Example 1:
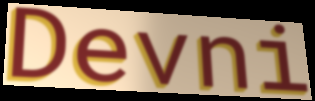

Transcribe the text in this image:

Devni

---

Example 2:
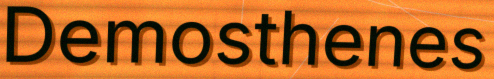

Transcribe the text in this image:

Demosthenes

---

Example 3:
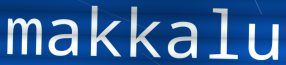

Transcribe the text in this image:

makkalu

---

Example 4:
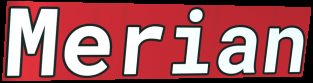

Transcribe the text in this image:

Merian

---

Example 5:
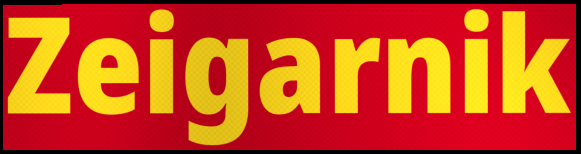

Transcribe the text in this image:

Zeigarnik